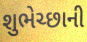
શુભેચ્છાની